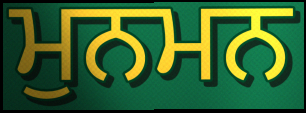
ਮੁਨਮਨ